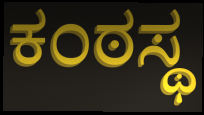
ಕಂಠಸ್ಥ